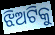
ଝିଅଟିକୁ